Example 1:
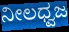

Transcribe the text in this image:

ನೀಲಧ್ವಜ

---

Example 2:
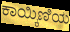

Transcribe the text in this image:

ಕಾಯ್ಕಿಣಿಯ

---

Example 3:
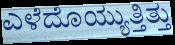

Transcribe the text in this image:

ಎಳೆದೊಯ್ಯುತ್ತಿತ್ತು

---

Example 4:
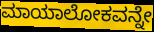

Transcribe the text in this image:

ಮಾಯಾಲೋಕವನ್ನೇ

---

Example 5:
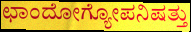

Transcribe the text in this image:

ಛಾಂದೋಗ್ಯೋಪನಿಷತ್ತು